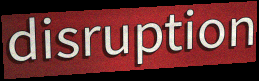
disruption